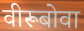
वीरूबोवा